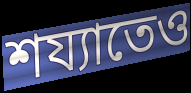
শয্যাতেও